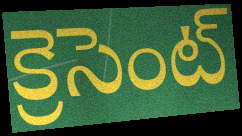
క్రెసెంట్